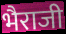
भैराजी